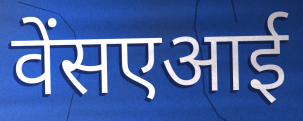
वेंसएआई